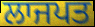
ਲਾਜਪਤ